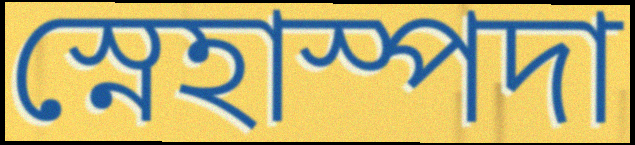
স্নেহাস্পদা